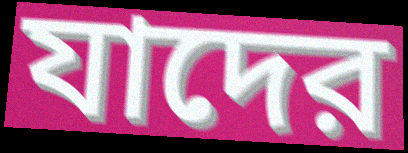
যাদের